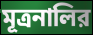
মূত্রনালির